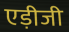
एड़ीजी